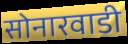
सोनारवाडी